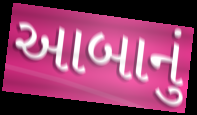
આબાનું